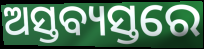
ଅସ୍ତବ୍ୟସ୍ତରେ